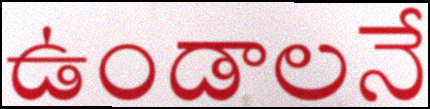
ఉండాలనే